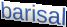
barisal